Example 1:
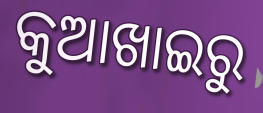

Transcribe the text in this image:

କୁଆଖାଇରୁ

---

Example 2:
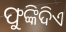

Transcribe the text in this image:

ଫୁଙ୍କିଦିଏ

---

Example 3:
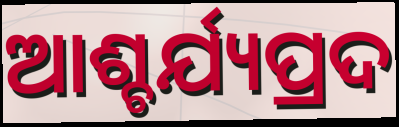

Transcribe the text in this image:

ଆଶ୍ଚର୍ଯ୍ୟପ୍ରଦ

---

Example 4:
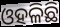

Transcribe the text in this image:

ଓହଳିଛି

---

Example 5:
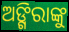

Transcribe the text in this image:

ଅଙ୍ଗିରାଙ୍କୁ